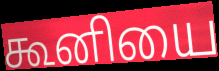
கூனியை